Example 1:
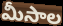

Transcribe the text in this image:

మీసాల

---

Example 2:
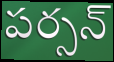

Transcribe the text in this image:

పర్సన్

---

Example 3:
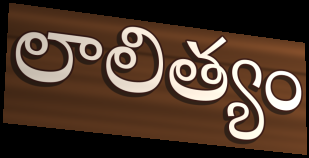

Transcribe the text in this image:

లాలిత్యం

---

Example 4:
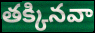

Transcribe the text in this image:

తక్కినవా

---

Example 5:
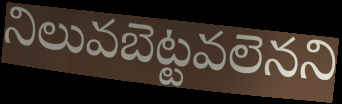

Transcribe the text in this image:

నిలువబెట్టవలెనని